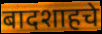
बादशाहचे